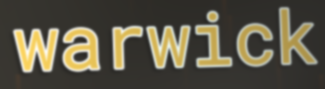
warwick